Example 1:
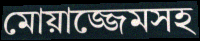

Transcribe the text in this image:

মোয়াজ্জেমসহ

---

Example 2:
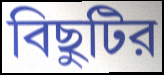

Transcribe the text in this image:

বিছুটির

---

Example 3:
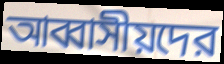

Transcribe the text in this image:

আব্বাসীয়দের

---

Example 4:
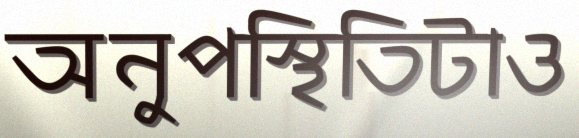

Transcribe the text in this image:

অনুপস্থিতিটাও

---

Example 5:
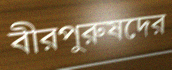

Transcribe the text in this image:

বীরপুরুষদের